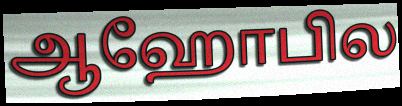
ஆஹோபில